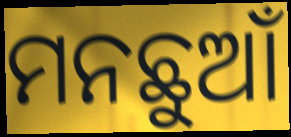
ମନଛୁଆଁ